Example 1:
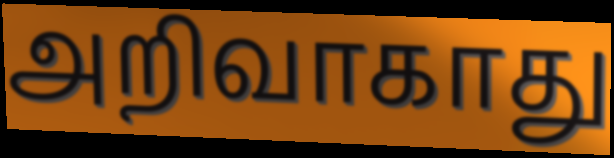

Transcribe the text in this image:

அறிவாகாது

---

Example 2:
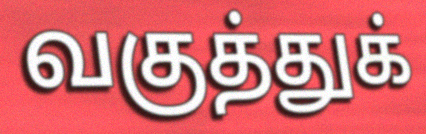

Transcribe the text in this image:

வகுத்துக்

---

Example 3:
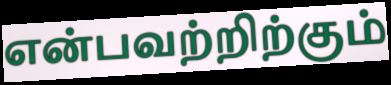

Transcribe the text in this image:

என்பவற்றிற்கும்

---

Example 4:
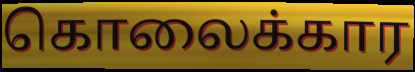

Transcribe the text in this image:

கொலைக்கார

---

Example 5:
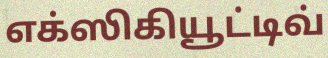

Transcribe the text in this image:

எக்ஸிகியூட்டிவ்